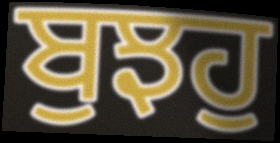
ਬੁਝਹੁ